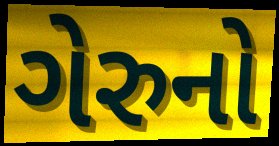
ગેરુનો